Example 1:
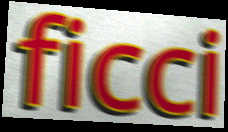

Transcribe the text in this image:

ficci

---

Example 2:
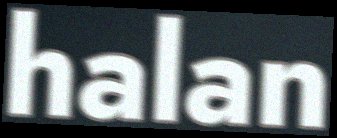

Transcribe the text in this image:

halan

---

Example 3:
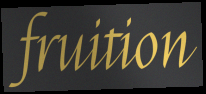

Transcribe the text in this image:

fruition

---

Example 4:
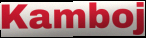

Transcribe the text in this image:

Kamboj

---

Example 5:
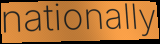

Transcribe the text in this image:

nationally